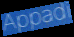
Appadi